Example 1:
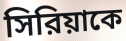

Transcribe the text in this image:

সিরিয়াকে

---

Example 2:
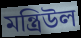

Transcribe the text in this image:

মন্ত্রিউল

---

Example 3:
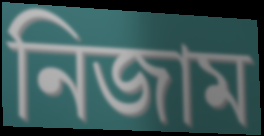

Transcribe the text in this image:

নিজাম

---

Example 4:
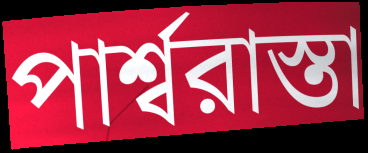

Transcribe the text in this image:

পার্শ্বরাস্তা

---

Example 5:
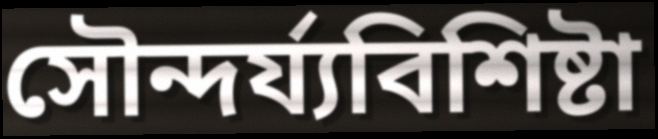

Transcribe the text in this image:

সৌন্দর্য্যবিশিষ্টা